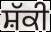
ਸ਼ੱਕੀ